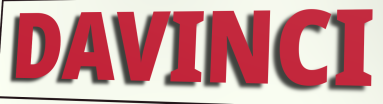
DAVINCI